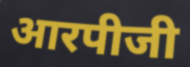
आरपीजी